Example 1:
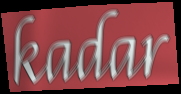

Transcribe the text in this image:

kadar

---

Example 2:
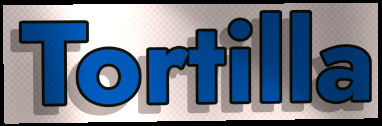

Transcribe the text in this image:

Tortilla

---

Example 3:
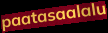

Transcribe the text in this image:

paatasaalalu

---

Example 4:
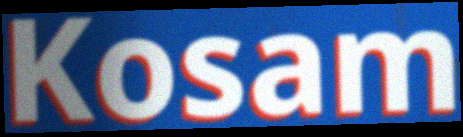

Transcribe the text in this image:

Kosam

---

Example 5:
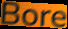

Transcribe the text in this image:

Bore